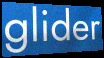
glider